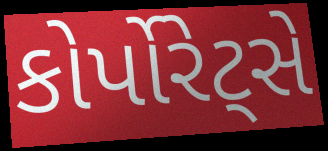
કોર્પોરેટ્સે